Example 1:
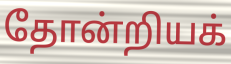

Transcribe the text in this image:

தோன்றியக்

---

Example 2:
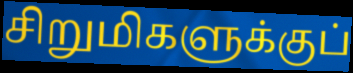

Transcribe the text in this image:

சிறுமிகளுக்குப்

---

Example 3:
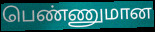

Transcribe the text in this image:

பெண்ணுமான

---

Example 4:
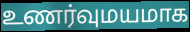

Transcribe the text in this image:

உணர்வுமயமாக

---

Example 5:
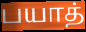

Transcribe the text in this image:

பயாத்